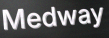
Medway